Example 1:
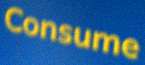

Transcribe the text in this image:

Consume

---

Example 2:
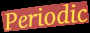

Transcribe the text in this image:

Periodic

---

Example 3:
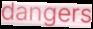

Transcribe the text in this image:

dangers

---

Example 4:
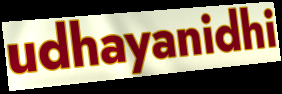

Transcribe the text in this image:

udhayanidhi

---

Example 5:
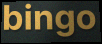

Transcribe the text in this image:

bingo